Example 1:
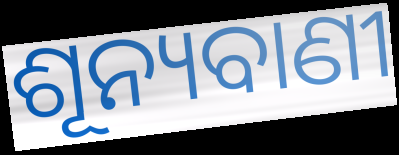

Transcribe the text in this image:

ଶୂନ୍ୟବାଣୀ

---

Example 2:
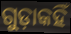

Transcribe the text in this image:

ଗୁଡ଼ାକହିଁ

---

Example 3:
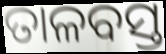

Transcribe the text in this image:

ତାଳବସ୍ତ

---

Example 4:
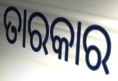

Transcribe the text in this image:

ତାରକାର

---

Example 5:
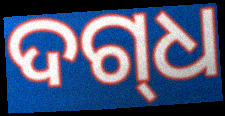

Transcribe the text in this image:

ଦଗ୍‌ଧ